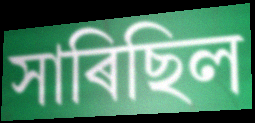
সাৰিছিল